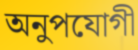
অনুপযোগী